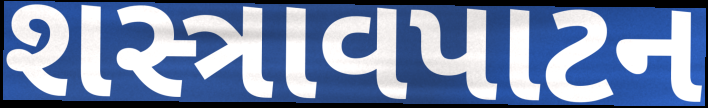
શસ્ત્રાવપાટન